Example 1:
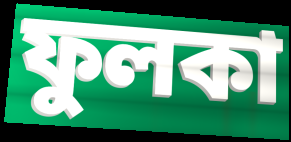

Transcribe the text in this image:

ফুলকা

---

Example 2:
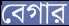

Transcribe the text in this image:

বেগার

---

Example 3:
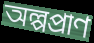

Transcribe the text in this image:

অল্পপ্রাণ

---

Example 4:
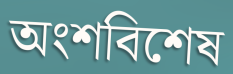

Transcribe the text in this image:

অংশবিশেষ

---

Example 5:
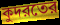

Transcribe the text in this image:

কুদরতের